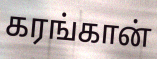
கரங்கான்